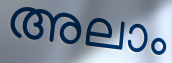
അലാം